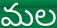
మల